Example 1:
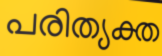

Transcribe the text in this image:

പരിത്യക്ത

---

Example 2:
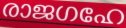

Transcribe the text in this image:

രാജഗഹേ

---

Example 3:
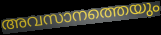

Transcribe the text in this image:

അവസാനത്തെയും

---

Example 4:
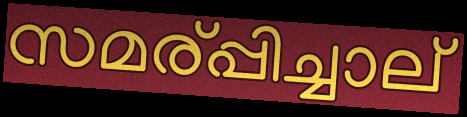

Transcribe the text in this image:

സമര്പ്പിച്ചാല്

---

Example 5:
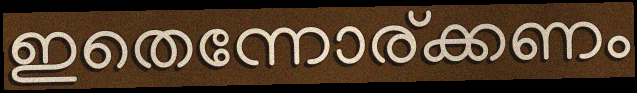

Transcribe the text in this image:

ഇതെന്നോര്ക്കണം